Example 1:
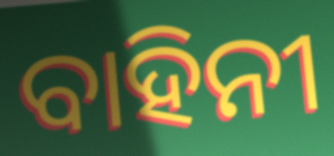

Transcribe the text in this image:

ବାହିନୀ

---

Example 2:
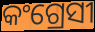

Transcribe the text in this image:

କଂଗ୍ରେସୀ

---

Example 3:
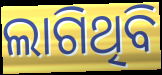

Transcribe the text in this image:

ଲାଗିଥିବି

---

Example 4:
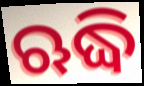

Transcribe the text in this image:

ଋଦ୍ଧି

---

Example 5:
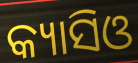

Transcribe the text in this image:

କ୍ୟାସିଓ